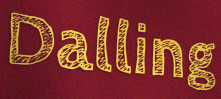
Dalling